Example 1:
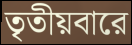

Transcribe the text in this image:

তৃতীয়বারে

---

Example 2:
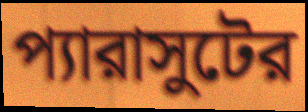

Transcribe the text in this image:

প্যারাসুটের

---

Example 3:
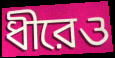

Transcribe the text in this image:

ধীরেও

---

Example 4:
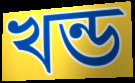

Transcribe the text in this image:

খন্ড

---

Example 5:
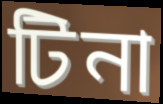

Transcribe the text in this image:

টিনা